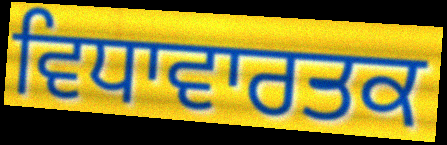
ਵਿਧਾਵਾਰਤਕ